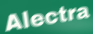
Alectra